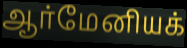
ஆர்மேனியக்